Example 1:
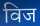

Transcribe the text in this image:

विज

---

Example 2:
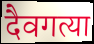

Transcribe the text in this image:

दैवगत्या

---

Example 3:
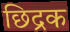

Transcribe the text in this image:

छिद्रक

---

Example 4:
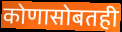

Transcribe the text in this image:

कोणासोबतही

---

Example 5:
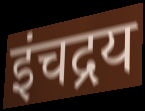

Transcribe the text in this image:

इंचद्रय